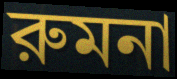
রুমনা